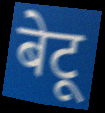
बेटू